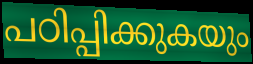
പഠിപ്പിക്കുകയും